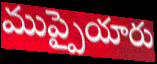
ముప్పైయారు